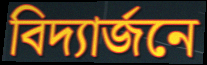
বিদ্যার্জনে